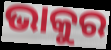
ଭାକୁର